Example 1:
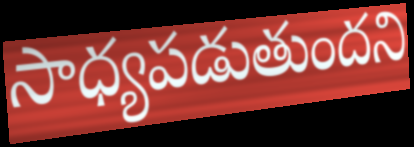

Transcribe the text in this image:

సాధ్యపడుతుందని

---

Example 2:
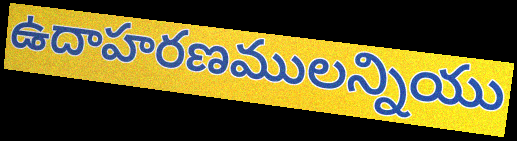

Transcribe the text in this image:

ఉదాహరణములన్నియు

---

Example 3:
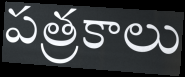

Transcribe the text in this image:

పత్రకాలు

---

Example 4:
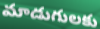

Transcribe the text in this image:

మాడుగులకు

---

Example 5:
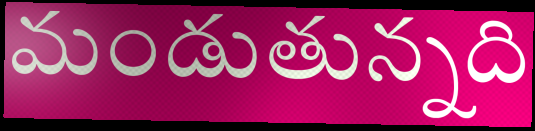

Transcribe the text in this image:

మండుతున్నది